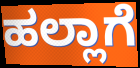
ಹಲ್ಲಾಗೆ